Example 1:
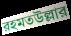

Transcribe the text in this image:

রহমতউল্লার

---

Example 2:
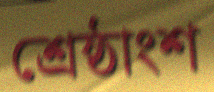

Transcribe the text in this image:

শ্রেষ্ঠাংশ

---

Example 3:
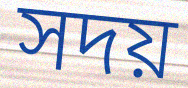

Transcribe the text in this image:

সদয়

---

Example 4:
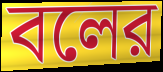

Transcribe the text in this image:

বলের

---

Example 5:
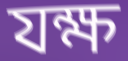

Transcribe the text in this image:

যক্ষ